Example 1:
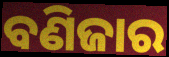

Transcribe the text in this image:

ବଣିଜାର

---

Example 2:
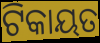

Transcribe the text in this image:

ଟିକାୟତ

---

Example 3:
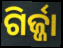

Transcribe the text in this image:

ଗିର୍ଜ୍ଜା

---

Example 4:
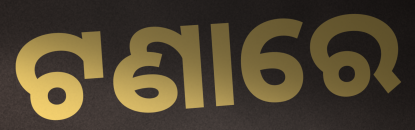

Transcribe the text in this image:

ଟଣାରେ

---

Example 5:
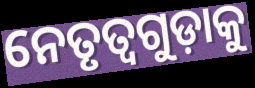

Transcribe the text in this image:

ନେତୃତ୍ୱଗୁଡ଼ାକୁ